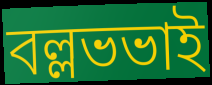
বল্লভভাই